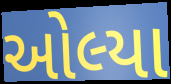
ઓલ્યા